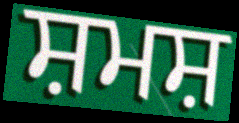
ਸ਼ਮਸ਼